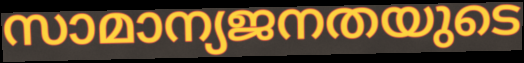
സാമാന്യജനതയുടെ